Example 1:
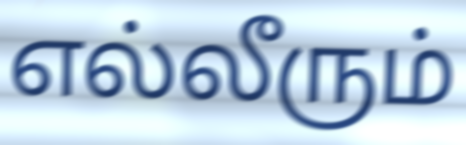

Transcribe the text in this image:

எல்லீரும்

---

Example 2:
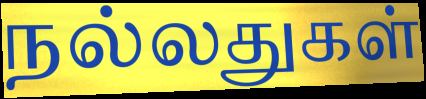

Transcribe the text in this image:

நல்லதுகள்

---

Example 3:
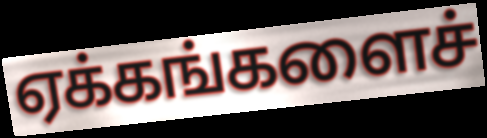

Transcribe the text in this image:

ஏக்கங்களைச்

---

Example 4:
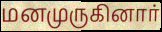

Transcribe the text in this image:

மனமுருகினார்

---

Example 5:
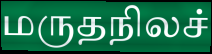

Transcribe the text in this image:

மருதநிலச்